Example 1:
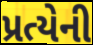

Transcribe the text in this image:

પ્રત્યેની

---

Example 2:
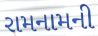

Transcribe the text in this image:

રામનામની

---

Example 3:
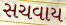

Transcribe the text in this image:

સચવાય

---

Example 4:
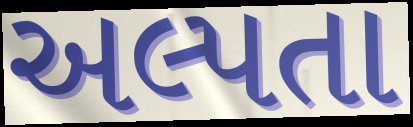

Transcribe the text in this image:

અલ્પતા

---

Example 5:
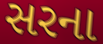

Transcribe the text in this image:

સરના